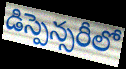
డిస్పెన్సరీలో